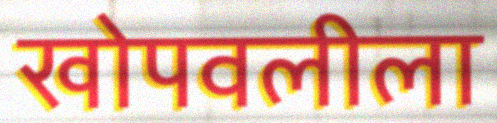
खोपवलीला